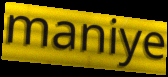
maniye